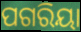
ପଗରିୟା